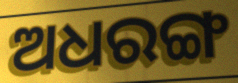
ଅଧରଙ୍ଗ